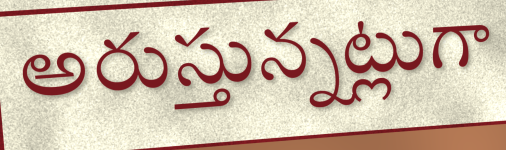
అరుస్తున్నట్లుగా